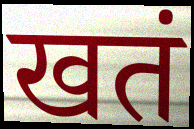
खतं